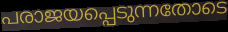
പരാജയപ്പെടുന്നതോടെ